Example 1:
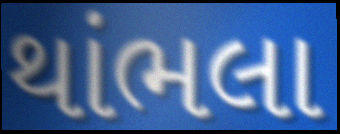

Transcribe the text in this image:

થાંભલા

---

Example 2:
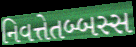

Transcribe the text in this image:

નિવત્તેતબ્બસ્સ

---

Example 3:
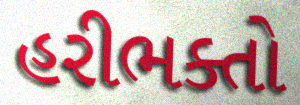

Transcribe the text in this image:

હરીભક્તો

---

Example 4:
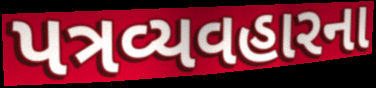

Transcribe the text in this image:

પત્રવ્યવહારના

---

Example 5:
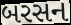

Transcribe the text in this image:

બરસન